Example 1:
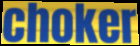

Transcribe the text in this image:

choker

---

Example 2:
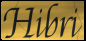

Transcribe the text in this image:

Hibri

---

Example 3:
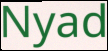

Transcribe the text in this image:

Nyad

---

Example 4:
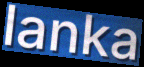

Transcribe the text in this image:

lanka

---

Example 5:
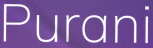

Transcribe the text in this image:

Purani